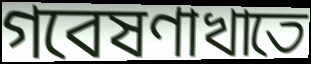
গবেষণাখাতে